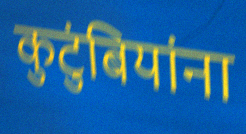
कुटुंबियांना